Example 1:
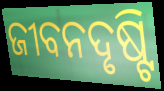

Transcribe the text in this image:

ଜୀବନଦୃଷ୍ଟି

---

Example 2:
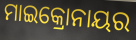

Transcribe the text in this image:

ମାଇକ୍ରୋନାୟର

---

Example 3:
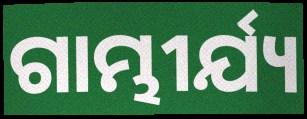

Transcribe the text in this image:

ଗାମ୍ଭୀର୍ଯ୍ୟ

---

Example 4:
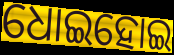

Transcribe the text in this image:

ଧୋଇହୋଇ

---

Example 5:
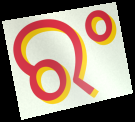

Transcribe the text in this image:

ରଂ